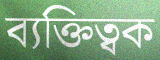
ব্যক্তিত্বক